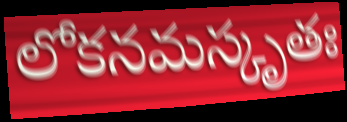
లోకనమస్కృతః